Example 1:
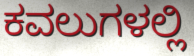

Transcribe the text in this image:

ಕವಲುಗಳಲ್ಲಿ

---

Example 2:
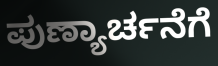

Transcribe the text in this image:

ಪುಣ್ಯಾರ್ಚನೆಗೆ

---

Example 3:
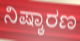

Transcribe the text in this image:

ನಿಷ್ಕಾರಣ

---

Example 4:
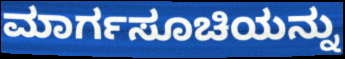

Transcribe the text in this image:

ಮಾರ್ಗಸೂಚಿಯನ್ನು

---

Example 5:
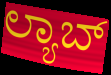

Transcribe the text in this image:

ಲ್ಯಾಬ್